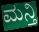
ಮನ್ತಿ